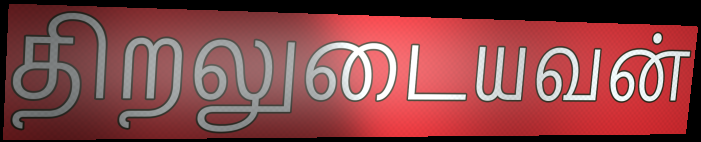
திறலுடையவன்